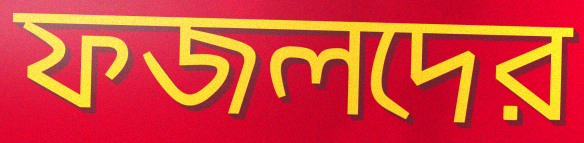
ফজলদের